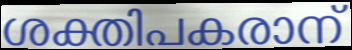
ശക്തിപകരാന്